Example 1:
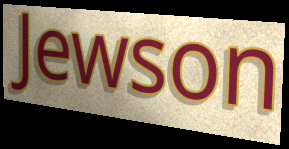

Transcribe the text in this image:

Jewson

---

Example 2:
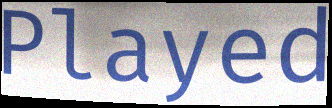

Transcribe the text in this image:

Played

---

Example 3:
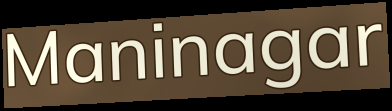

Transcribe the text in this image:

Maninagar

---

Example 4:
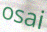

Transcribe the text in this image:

osai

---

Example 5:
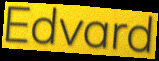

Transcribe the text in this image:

Edvard